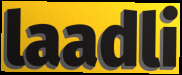
laadli